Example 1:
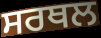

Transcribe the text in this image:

ਸਰਥਲ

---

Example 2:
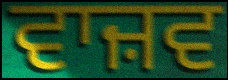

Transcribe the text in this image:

ਵਾਜ਼ਵ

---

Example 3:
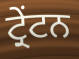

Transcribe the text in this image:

ਟ੍ਰੇਂਟਨ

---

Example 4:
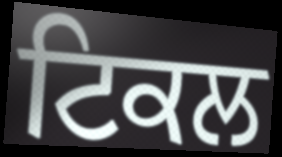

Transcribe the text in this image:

ਟਿਕਲ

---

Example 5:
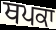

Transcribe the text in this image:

ਥਪਕਾ